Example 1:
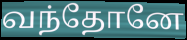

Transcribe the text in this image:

வந்தோனே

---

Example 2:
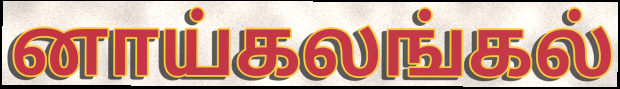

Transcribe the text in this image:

னாய்கலங்கல்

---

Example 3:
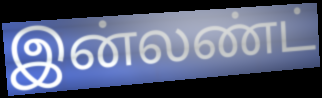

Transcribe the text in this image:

இன்லண்ட்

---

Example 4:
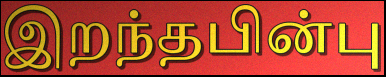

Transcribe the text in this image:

இறந்தபின்பு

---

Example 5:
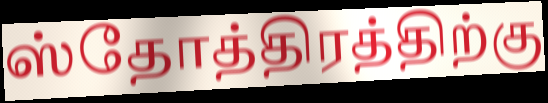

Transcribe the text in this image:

ஸ்தோத்திரத்திற்கு